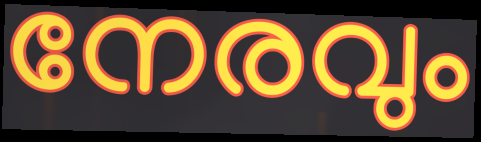
നേരവും